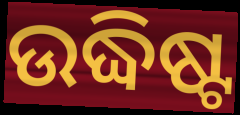
ଉଦ୍ଧିଷ୍ଟ